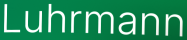
Luhrmann